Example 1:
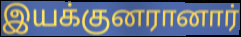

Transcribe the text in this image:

இயக்குனரானார்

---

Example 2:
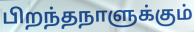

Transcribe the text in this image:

பிறந்தநாளுக்கும்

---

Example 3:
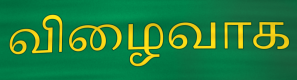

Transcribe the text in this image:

விழைவாக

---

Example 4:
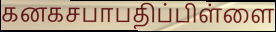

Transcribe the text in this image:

கனகசபாபதிப்பிள்ளை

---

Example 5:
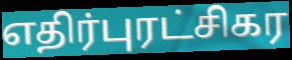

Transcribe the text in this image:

எதிர்புரட்சிகர